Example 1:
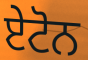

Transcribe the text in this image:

ਏਟੋਨ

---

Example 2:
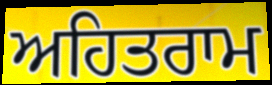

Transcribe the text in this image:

ਅਹਿਤਰਾਮ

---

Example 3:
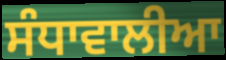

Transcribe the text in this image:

ਸੰਧਾਵਾਲੀਆ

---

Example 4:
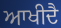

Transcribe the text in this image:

ਆਖੀਦੈ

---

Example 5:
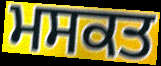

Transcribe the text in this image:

ਮਸਕਤ